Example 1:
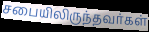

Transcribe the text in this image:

சபையிலிருந்தவர்கள்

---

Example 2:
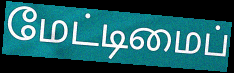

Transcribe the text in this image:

மேட்டிமைப்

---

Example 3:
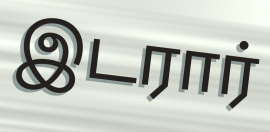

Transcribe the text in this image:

இடரார்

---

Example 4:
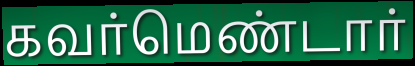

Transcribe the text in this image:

கவர்மெண்டார்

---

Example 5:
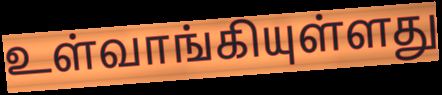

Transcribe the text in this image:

உள்வாங்கியுள்ளது